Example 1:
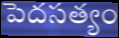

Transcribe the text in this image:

పెదసత్యం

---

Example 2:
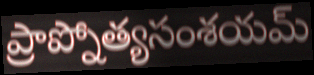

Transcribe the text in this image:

ప్రాప్నోత్యసంశయమ్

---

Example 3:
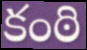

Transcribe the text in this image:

కంఠి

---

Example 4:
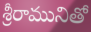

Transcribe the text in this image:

శ్రీరామునితో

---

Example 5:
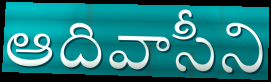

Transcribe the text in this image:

ఆదివాసీని